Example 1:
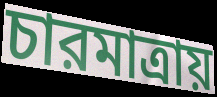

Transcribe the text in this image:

চারমাত্রায়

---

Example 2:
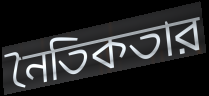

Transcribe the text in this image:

নৈতিকতার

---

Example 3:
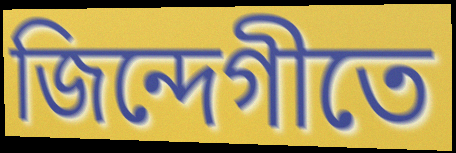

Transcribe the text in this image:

জিন্দেগীতে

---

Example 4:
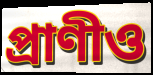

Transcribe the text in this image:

প্রাণীও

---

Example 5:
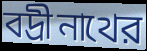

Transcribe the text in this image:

বদ্রীনাথের